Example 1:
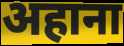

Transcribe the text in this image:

अहाना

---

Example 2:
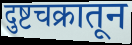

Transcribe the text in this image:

दुष्टचक्रातून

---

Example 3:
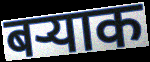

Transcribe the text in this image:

बऱ्याक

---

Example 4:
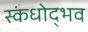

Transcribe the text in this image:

स्कंधोद्भव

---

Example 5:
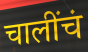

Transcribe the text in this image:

चालींचं